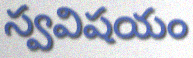
స్వవిషయం